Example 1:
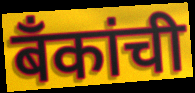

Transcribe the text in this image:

बँकांची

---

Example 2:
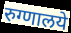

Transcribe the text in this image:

रुग्णालये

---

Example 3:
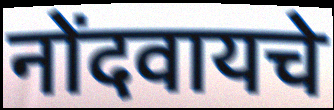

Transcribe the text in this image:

नोंदवायचे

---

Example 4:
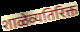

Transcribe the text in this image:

शाळेव्यतिरिक्त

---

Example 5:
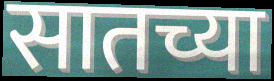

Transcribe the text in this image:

सातच्या